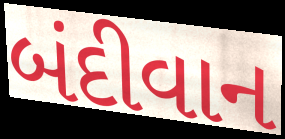
બંદીવાન